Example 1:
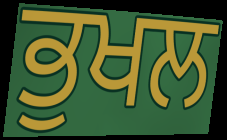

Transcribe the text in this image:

ਭੁਖਲ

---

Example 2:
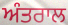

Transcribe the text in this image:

ਅੰਤਰਾਲ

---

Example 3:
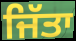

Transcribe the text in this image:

ਜਿੱਤਾ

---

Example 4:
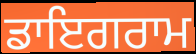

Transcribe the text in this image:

ਡਾਇਗਰਾਮ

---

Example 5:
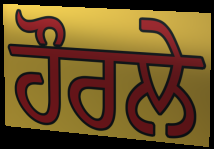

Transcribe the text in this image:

ਹੌਰਲੇ